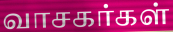
வாசகர்கள்